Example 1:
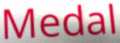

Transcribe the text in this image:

Medal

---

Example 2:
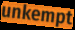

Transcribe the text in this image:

unkempt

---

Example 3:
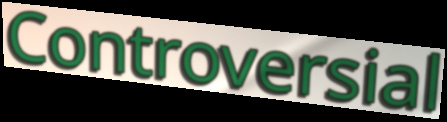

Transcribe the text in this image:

Controversial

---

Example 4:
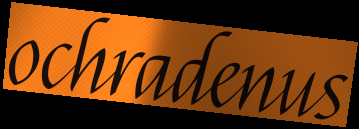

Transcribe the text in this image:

ochradenus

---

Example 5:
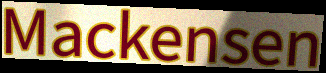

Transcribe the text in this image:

Mackensen